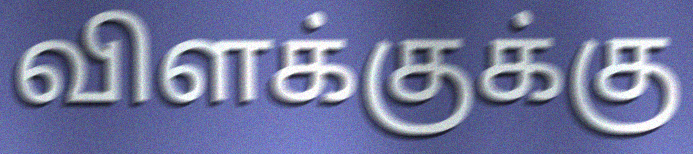
விளக்குக்கு